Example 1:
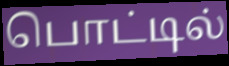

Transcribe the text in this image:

பொட்டில்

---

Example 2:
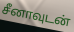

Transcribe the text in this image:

சீனாவுடன்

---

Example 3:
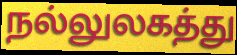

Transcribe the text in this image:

நல்லுலகத்து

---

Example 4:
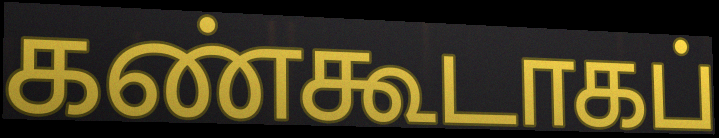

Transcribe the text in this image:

கண்கூடாகப்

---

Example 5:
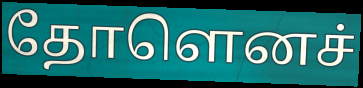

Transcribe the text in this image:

தோளெனச்